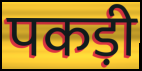
पकड़ी